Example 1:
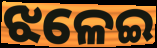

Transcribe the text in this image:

ଝଳେଇ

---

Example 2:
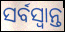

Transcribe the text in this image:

ସର୍ବସ୍ୱାନ୍ତ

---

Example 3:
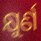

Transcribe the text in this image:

କ୍ଷୁର୍ଣ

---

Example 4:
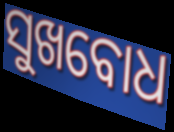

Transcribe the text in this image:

ସୁଖବୋଧ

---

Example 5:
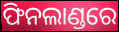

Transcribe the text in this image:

ଫିନଲାଣ୍ଡରେ